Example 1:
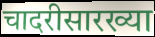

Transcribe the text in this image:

चादरीसारख्या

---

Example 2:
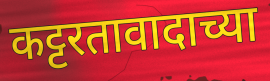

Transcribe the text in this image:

कट्टरतावादाच्या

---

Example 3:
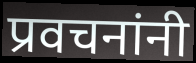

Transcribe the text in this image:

प्रवचनांनी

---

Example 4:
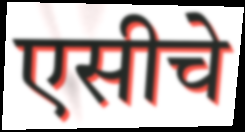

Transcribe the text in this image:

एसीचे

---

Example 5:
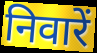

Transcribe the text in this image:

निवारें